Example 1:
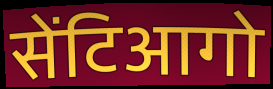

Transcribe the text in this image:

सेंटिआगो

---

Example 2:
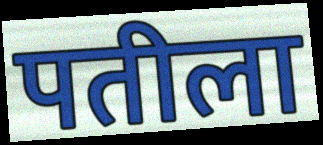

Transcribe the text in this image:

पतीला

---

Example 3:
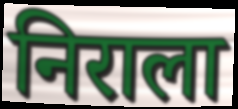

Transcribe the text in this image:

निराला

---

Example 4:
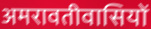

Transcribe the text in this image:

अमरावतीवासियों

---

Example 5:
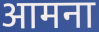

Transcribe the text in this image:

आमना